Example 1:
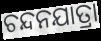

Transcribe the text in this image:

ଚନ୍ଦନଯାତ୍ରା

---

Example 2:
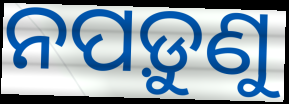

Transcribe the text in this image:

ନପଡ଼ୁଣୁ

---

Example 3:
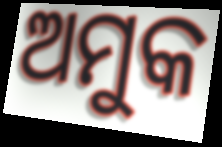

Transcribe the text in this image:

ଅମୁକ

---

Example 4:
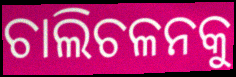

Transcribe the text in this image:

ଚାଲିଚଳନକୁ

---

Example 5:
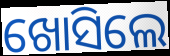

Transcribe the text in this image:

ଖୋସିଲେ